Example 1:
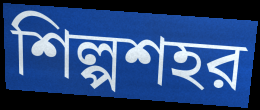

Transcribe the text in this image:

শিল্পশহর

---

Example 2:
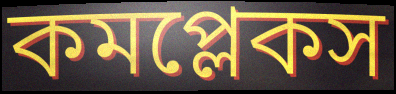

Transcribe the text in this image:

কমপ্লেকস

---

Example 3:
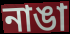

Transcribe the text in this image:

নাঙা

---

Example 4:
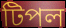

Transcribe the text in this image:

টিপল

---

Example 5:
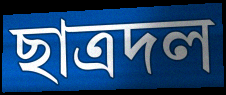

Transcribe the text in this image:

ছাত্রদল